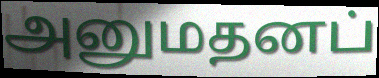
அனுமதனப்